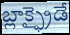
బ్లాక్ఫ్రైడే